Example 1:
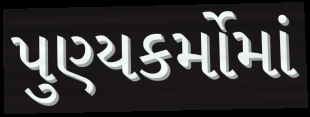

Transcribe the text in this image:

પુણ્યકર્મોમાં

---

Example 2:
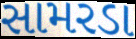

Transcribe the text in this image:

સામરડા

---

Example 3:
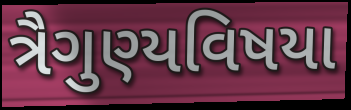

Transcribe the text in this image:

ત્રૈગુણ્યવિષયા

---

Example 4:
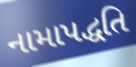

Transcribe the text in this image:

નામાપદ્ધતિ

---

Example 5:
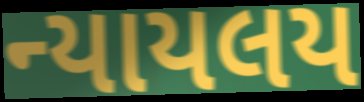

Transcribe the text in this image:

ન્યાયલય